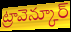
ట్రావెన్కూర్